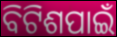
ବିଟିଶପାଇଁ